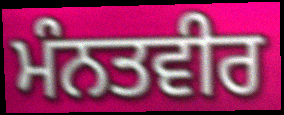
ਮੰਨਤਵੀਰ